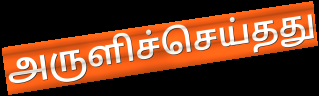
அருளிச்செய்தது